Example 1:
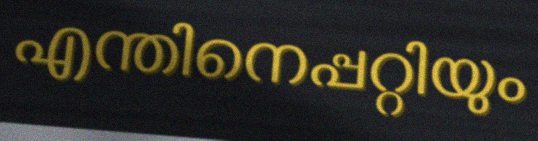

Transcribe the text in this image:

എന്തിനെപ്പറ്റിയും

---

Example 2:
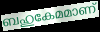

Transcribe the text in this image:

ബഹുകേമമാണ്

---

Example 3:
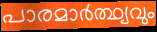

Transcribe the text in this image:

പാരമാർത്ഥ്യവും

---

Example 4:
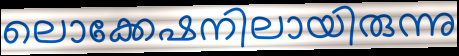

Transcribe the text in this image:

ലൊക്കേഷനിലായിരുന്നു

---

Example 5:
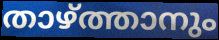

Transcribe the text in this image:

താഴ്ത്താനും